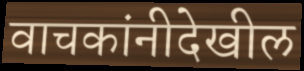
वाचकांनीदेखील